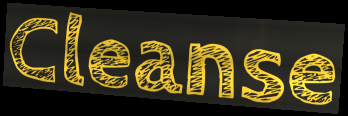
Cleanse